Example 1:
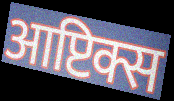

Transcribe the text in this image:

आप्टिक्स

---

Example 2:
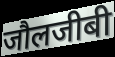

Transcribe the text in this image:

जौलजीबी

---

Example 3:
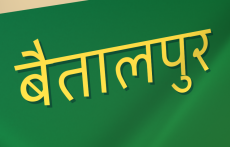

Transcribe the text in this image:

बैतालपुर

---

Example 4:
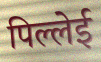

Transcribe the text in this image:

पिल्लेई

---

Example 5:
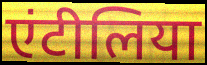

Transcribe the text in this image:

एंटीलिया